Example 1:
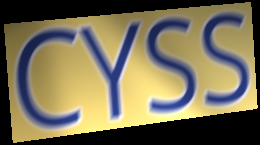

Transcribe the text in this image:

CYSS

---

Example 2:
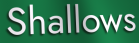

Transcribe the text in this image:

Shallows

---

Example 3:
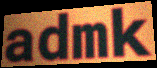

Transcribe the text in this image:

admk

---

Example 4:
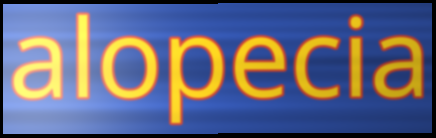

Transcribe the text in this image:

alopecia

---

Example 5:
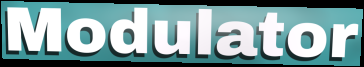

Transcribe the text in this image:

Modulator